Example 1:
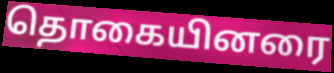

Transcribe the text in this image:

தொகையினரை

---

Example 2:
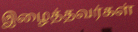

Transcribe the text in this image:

இழைத்தவர்கள்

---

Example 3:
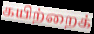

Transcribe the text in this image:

கயிற்றைக்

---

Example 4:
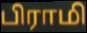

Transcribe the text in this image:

பிராமி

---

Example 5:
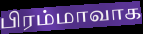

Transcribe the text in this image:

பிரம்மாவாக